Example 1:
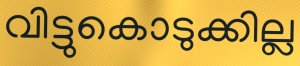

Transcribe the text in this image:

വിട്ടുകൊടുക്കില്ല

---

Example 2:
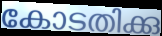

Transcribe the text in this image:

കോടതിക്കു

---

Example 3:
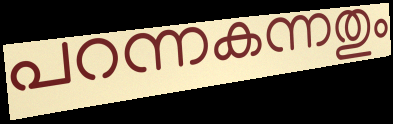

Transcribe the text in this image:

പറന്നകന്നതും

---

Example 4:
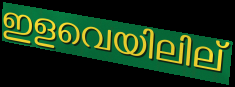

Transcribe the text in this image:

ഇളവെയിലില്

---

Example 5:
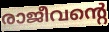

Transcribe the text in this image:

രാജീവന്റെ